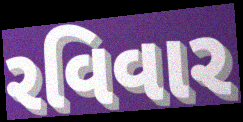
રવિવાર